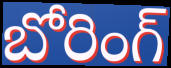
బోరింగ్